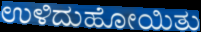
ಉಳಿದುಹೋಯಿತು